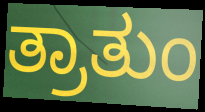
ತ್ರಾತುಂ